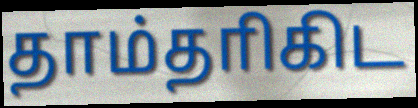
தாம்தரிகிட